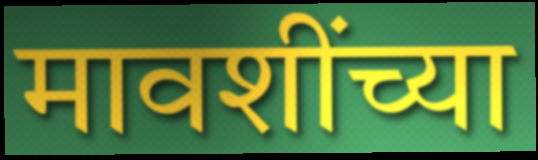
मावशींच्या